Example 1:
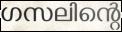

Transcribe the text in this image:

ഗസലിന്റെ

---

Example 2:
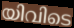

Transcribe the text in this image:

യിവിടെ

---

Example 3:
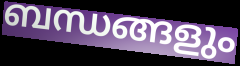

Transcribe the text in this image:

ബന്ധങ്ങളും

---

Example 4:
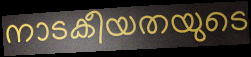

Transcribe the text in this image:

നാടകീയതയുടെ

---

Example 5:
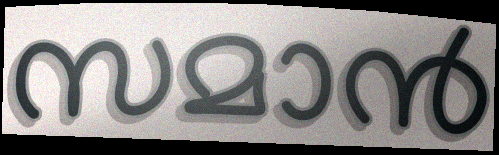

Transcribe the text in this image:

സമാൻ